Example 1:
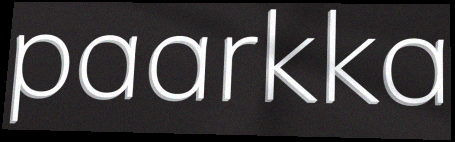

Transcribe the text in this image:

paarkka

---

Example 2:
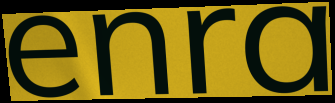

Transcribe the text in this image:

enra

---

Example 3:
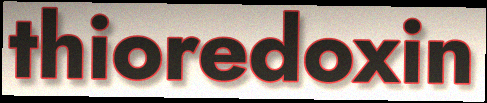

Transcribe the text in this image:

thioredoxin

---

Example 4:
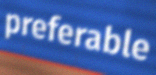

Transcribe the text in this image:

preferable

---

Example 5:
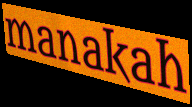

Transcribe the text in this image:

manakah